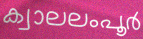
ക്വാലലംപൂർ